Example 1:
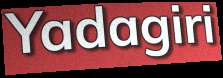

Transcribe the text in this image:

Yadagiri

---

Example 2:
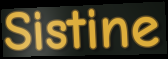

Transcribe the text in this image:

Sistine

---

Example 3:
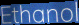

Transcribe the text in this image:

Ethanol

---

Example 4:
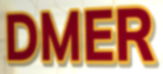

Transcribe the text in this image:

DMER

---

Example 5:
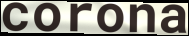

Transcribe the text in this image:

corona